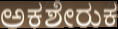
ಅಕಶೇರುಕ